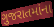
ગુજરાતમાંના